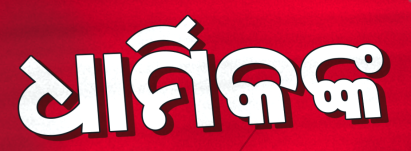
ଧାର୍ମିକଙ୍କ